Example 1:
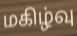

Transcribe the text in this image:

மகிழ்வு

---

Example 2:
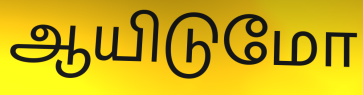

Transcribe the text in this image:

ஆயிடுமோ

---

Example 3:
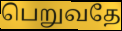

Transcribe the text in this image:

பெறுவதே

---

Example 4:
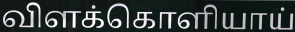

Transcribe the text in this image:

விளக்கொளியாய்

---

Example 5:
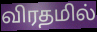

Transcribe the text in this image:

விரதமில்